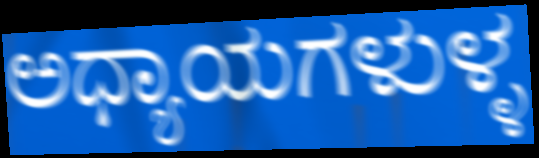
ಅಧ್ಯಾಯಗಳುಳ್ಳ